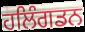
ਹਲਿੰਗਡਨ